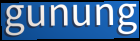
gunung